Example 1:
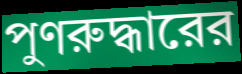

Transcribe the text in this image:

পুণরুদ্ধারের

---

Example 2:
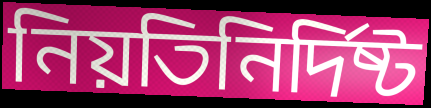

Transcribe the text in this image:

নিয়তিনির্দিষ্ট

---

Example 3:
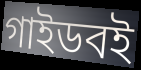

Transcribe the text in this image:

গাইডবই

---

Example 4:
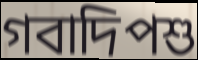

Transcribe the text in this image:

গবাদিপশু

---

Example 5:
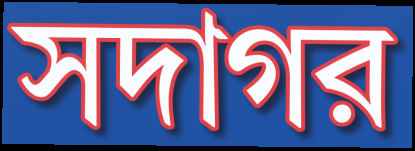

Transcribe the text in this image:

সদাগর